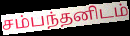
சம்பந்தனிடம்